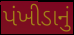
પંખીડાનું